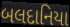
બલદાનિયા